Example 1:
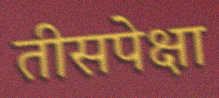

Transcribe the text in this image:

तीसपेक्षा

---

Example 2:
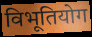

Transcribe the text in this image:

विभूतियोग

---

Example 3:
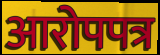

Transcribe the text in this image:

आरोपपत्र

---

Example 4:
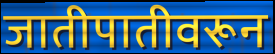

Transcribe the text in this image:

जातीपातीवरून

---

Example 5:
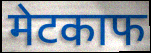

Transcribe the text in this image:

मेटकाफ